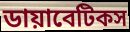
ডায়াবেটিকস